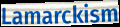
Lamarckism